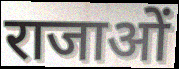
राजाओं